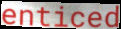
enticed